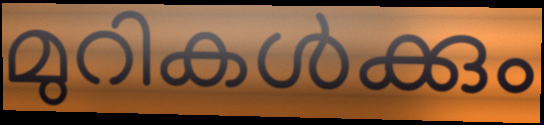
മുറികൾക്കും